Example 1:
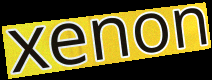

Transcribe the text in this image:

xenon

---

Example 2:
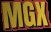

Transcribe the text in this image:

MGX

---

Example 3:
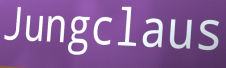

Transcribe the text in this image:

Jungclaus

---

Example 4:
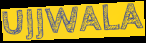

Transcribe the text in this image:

UJJWALA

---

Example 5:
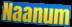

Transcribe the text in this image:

Naanum